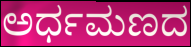
ಅರ್ಧಮಣದ